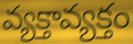
వ్యక్తావ్యక్తం